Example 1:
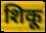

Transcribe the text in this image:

शिकू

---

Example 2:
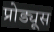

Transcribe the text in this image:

प्रोड्यूस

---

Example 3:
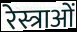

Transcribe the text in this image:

रेस्त्राओं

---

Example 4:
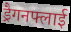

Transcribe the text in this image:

ड्रैगनफ्लाई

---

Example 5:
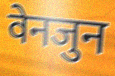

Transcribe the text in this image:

वेनजुन